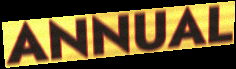
ANNUAL